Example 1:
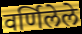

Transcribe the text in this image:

वर्णिलेले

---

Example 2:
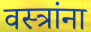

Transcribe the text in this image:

वस्त्रांना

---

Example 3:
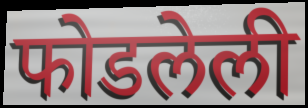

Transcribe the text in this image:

फोडलेली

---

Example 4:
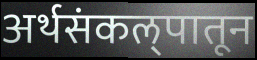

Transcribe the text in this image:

अर्थसंकल्पातून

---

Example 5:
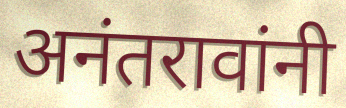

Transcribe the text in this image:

अनंतरावांनी